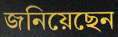
জনিয়েছেন